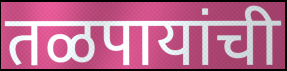
तळपायांची